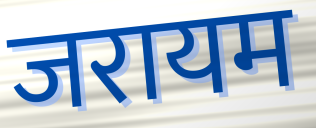
जरायम